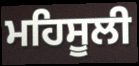
ਮਹਿਸੂਲੀ